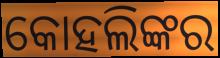
କୋହଲିଙ୍କର